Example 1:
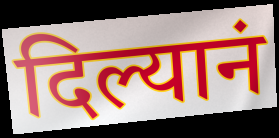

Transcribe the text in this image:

दिल्यानं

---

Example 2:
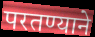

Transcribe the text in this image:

परतण्याने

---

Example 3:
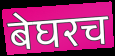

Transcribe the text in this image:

बेघरच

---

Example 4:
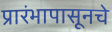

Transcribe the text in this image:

प्रारंभापासूनचे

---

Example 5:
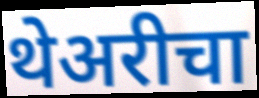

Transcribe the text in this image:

थेअरीचा